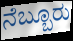
ನೆಬ್ಬೂರು